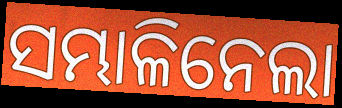
ସମ୍ଭାଳିନେଲା